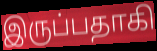
இருப்பதாகி